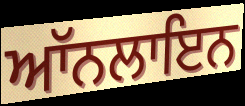
ਆੱਨਲਾਇਨ